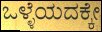
ಒಳ್ಳೆಯದಕ್ಕೇ